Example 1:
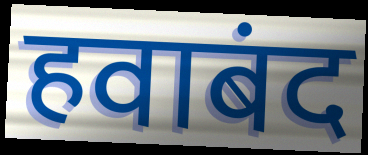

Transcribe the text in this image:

हवाबंद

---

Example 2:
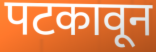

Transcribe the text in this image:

पटकावून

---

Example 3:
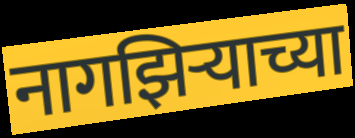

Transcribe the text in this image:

नागझिऱ्याच्या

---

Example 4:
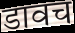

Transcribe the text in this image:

डावच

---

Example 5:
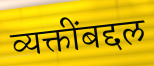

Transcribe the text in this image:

व्यक्तींबद्दल